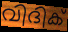
വിദിക്